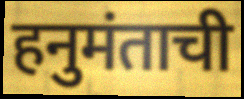
हनुमंताची